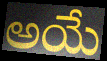
అయే